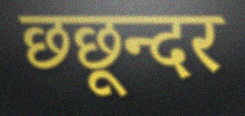
छछून्दर